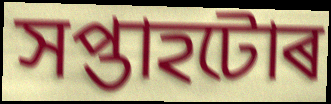
সপ্তাহটোৰ